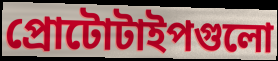
প্রোটোটাইপগুলো